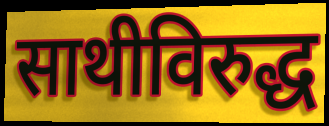
साथीविरुद्ध